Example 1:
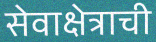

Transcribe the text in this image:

सेवाक्षेत्राची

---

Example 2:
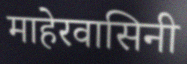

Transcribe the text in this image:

माहेरवासिनी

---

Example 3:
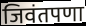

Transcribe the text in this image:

जिवंतपणा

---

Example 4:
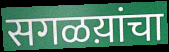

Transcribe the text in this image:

सगळय़ांचा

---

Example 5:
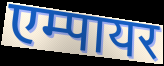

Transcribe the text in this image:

एम्पायर